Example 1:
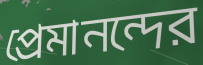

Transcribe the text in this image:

প্রেমানন্দের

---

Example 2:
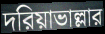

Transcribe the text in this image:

দরিয়াভাল্লার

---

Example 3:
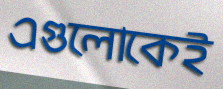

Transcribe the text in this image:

এগুলোকেই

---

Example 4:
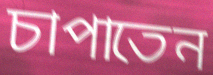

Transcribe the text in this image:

চাপাতেন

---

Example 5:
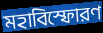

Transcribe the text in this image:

মহাবিস্ফোরণ